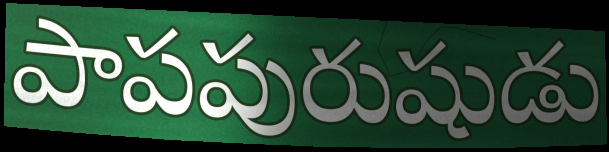
పాపపురుషుడు